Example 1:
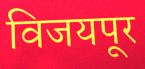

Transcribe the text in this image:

विजयपूर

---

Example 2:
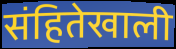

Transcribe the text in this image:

संहितेखाली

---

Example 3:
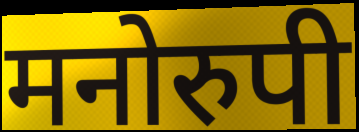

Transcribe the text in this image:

मनोरुपी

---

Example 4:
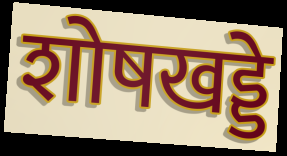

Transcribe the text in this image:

शोषखड्डे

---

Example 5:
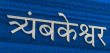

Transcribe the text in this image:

त्र्यंबकेश्वर